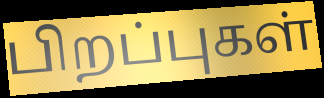
பிறப்புகள்